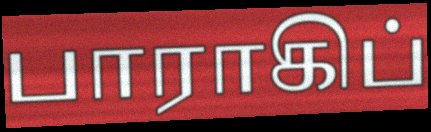
பாராகிப்